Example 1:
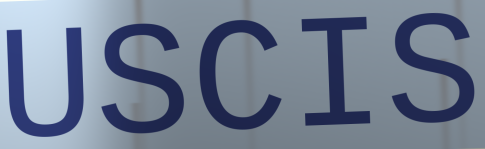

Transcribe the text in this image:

USCIS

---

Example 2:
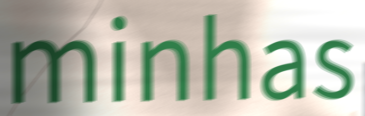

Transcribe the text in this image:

minhas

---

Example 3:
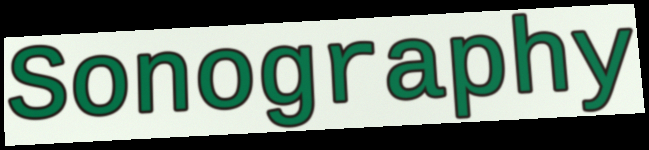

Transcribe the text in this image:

Sonography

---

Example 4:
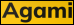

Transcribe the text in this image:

Agami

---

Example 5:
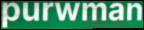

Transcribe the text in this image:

purwman